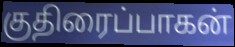
குதிரைப்பாகன்